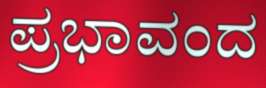
ಪ್ರಭಾವಂದ